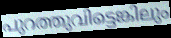
പുറത്തുവിട്ടെങ്കിലും